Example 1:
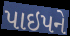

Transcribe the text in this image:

પાઇપને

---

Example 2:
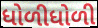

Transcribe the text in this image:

ધોળીધોળી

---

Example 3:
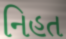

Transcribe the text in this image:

નિહત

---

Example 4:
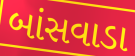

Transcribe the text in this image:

બાંસવાડા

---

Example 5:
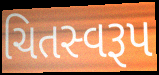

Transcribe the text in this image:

ચિતસ્વરૂપ